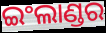
ଇଂଲାଣ୍ଡର